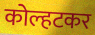
कोल्हटकर